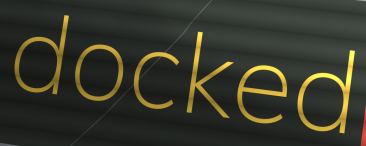
docked